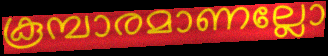
കൂമ്പാരമാണല്ലോ